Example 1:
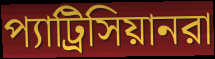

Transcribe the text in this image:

প্যাট্রিসিয়ানরা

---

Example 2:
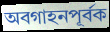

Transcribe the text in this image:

অবগাহনপূর্বক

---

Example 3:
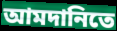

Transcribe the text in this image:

আমদানিতে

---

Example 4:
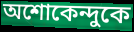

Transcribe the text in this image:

অশোকেন্দুকে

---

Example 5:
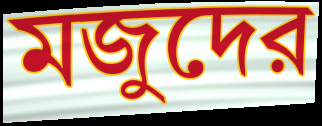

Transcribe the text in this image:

মজুদের